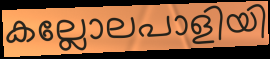
കല്ലോലപാളിയി